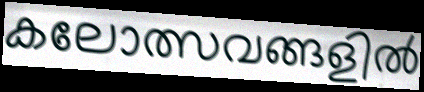
കലോത്സവങ്ങളിൽ